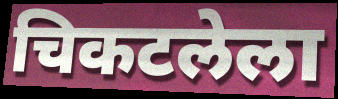
चिकटलेला